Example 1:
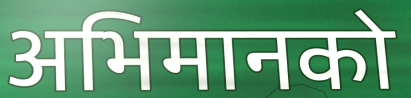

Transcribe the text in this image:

अभिमानको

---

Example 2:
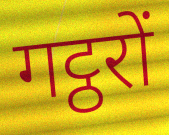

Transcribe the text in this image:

गट्ठरों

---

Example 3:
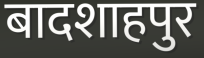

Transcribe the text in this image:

बादशाहपुर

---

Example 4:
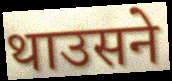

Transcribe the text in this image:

थाउसने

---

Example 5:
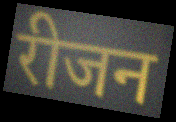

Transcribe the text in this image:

रीजन